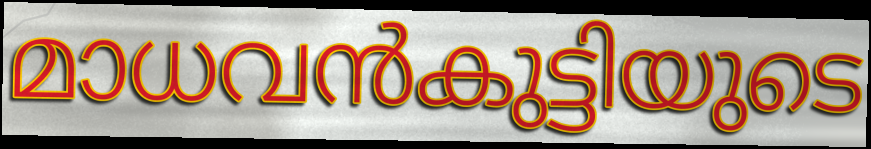
മാധവൻകുട്ടിയുടെ